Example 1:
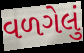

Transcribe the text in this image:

વળગેલું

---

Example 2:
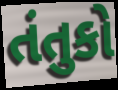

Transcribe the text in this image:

તંતુકો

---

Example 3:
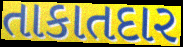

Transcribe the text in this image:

તાકાતદાર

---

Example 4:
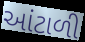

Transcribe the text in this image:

આંટાળી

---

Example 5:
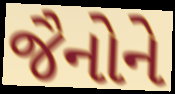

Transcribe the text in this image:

જૈનોને